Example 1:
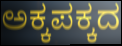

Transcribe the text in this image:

ಅಕ್ಕಪಕ್ಕದ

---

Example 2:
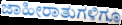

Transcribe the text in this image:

ಜಾಹೀರಾತುಗಳಿಗೂ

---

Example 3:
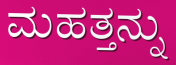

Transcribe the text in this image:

ಮಹತ್ತನ್ನು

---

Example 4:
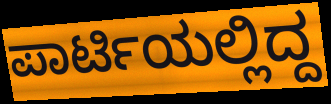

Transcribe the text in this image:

ಪಾರ್ಟಿಯಲ್ಲಿದ್ದ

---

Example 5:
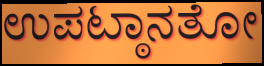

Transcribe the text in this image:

ಉಪಟ್ಠಾನತೋ